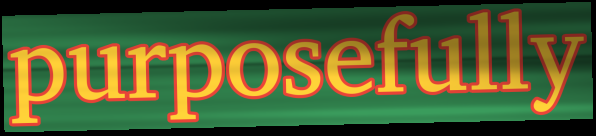
purposefully